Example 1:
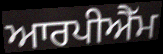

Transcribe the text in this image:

ਆਰਪੀਐੱਮ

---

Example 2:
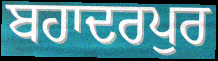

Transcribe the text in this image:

ਬਹਾਦਰਪੁਰ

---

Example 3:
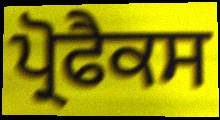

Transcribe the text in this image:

ਪ੍ਰੋਫੈਕਸ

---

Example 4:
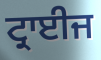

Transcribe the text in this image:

ਟ੍ਰਾਈਜ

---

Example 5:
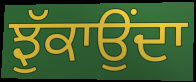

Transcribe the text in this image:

ਝੁੱਕਾਉਂਦਾ